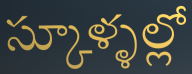
స్కూళ్ళల్లో